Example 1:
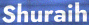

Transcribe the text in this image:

Shuraih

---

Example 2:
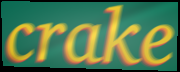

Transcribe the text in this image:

crake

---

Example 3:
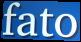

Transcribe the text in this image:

fato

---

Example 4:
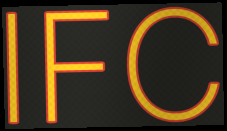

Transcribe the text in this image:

IFC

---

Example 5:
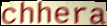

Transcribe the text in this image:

chhera